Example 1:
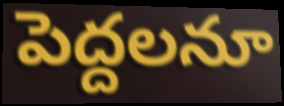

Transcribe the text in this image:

పెద్దలనూ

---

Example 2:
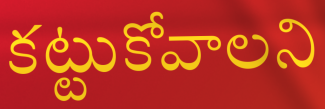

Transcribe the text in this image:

కట్టుకోవాలని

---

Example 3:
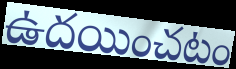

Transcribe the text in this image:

ఉదయించటం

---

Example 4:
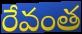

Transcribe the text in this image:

రేవంత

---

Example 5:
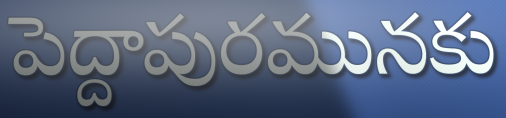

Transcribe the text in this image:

పెద్దాపురమునకు